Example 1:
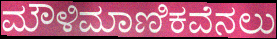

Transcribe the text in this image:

ಮೌಳಿಮಾಣಿಕವೆನಲು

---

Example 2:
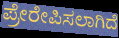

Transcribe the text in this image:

ಪ್ರೇರೇಪಿಸಲಾಗಿದೆ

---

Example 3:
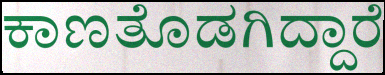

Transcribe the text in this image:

ಕಾಣತೊಡಗಿದ್ದಾರೆ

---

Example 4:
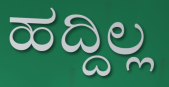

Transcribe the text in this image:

ಹದ್ದಿಲ್ಲ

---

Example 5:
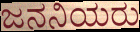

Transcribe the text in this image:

ಜನನಿಯರು